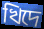
খিদে